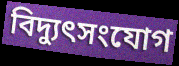
বিদ্যুৎসংযোগ